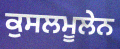
ਕੁਸਲਮੂਲੇਨ